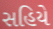
સહિયે